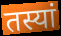
तस्यां